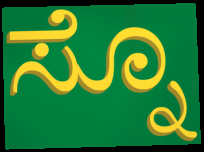
ಸ್ನೊ